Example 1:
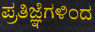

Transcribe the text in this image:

ಪ್ರತಿಜ್ಞೆಗಳಿಂದ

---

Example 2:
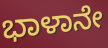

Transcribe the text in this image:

ಭಾಳಾನೇ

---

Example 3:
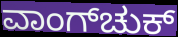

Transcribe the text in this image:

ವಾಂಗ್‌ಚುಕ್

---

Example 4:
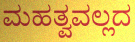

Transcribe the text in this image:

ಮಹತ್ವವಲ್ಲದ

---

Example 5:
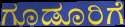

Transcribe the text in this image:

ಗೂಡೂರಿಗೆ